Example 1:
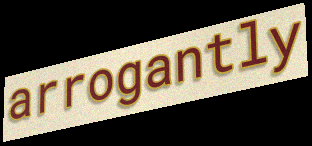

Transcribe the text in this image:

arrogantly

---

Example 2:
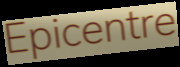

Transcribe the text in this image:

Epicentre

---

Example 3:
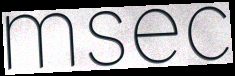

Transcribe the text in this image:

msec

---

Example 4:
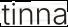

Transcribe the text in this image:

tinna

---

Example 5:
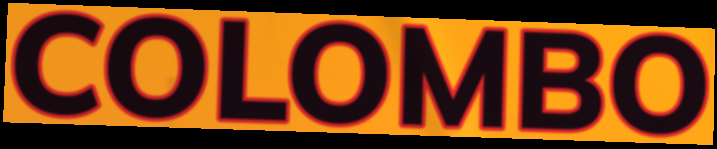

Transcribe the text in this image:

COLOMBO